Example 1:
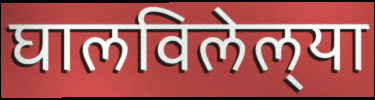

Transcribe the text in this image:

घालविलेल्या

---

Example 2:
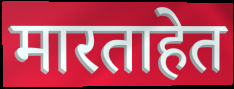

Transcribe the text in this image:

मारताहेत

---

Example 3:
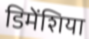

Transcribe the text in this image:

डिमेंशिया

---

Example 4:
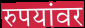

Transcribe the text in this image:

रुपयांवर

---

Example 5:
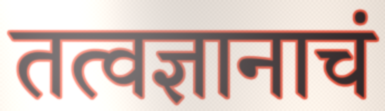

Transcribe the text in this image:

तत्वज्ञानाचं